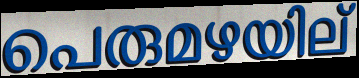
പെരുമഴയില്